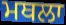
ਮਥਲਾ